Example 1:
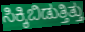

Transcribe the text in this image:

ಸಿಕ್ಕಿಬಿಡುತ್ತಿತ್ತು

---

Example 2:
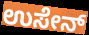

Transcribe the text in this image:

ಉಸೇನ್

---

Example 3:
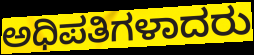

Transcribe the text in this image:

ಅಧಿಪತಿಗಳಾದರು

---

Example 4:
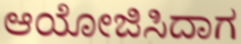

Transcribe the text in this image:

ಆಯೋಜಿಸಿದಾಗ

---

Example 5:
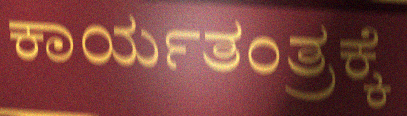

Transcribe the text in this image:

ಕಾರ್ಯತಂತ್ರಕ್ಕೆ